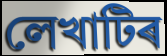
লেখাটিৰ